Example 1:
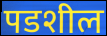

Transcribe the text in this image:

पडशील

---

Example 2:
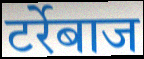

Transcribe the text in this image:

टर्रेबाज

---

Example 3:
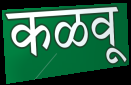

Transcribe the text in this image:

कळवू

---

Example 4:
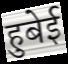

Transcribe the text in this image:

हुबेई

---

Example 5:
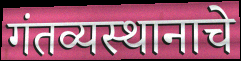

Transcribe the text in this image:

गंतव्यस्थानाचे